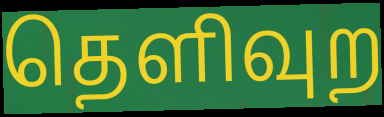
தெளிவுற